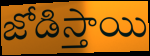
జోడిస్తాయి